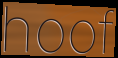
hoof